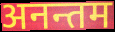
अनन्तम